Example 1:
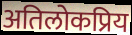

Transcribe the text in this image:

अतिलोकप्रिय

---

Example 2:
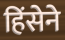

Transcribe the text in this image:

हिंसेने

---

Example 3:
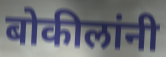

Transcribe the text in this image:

बोकीलांनी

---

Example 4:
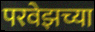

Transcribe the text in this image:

परवेझच्या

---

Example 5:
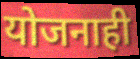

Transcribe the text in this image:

योजनाही